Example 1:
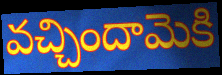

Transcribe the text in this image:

వచ్చిందామెకి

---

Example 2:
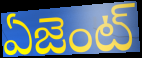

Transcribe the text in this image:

ఏజెంట్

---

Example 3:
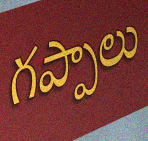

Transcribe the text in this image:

గప్పాలు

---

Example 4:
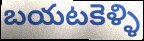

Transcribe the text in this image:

బయటకెళ్ళి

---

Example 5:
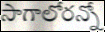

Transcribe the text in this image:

సాగాలోరన్నో